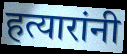
हत्यारांनी